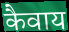
कैवाय